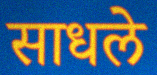
साधले